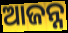
ଆଜନ୍ନ